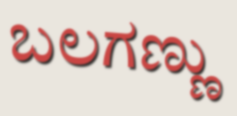
ಬಲಗಣ್ಣು